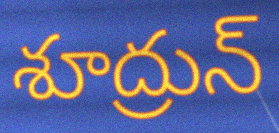
శూద్రున్